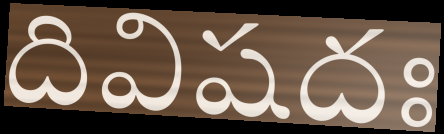
దివిషదః